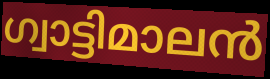
ഗ്വാട്ടിമാലൻ